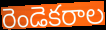
రెండెకరాల